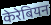
केरेबियन